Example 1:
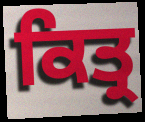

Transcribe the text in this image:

ਕਿਤ੍ਰ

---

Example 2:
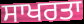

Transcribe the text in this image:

ਸਾਖਰਤਾ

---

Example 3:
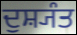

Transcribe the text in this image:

ਦੁਸ਼੍ਯੰਤ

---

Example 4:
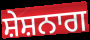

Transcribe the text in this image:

ਸ਼ੇਸ਼ਨਾਗ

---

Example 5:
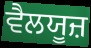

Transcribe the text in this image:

ਵੈਲਯੂਜ਼